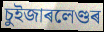
চুইজাৰলেণ্ডৰ